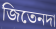
জিতেনদা